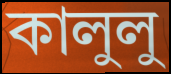
কালুলু